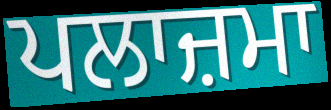
ਪਲਾਜ਼ਮਾ